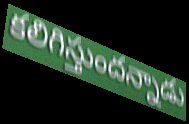
కలిగిస్తుందన్నాడు